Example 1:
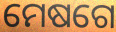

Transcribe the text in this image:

ମେଷଗେ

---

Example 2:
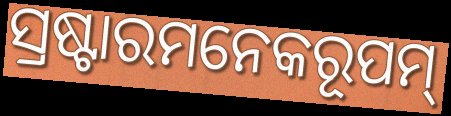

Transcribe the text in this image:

ସ୍ରଷ୍ଟାରମନେକରୂପମ୍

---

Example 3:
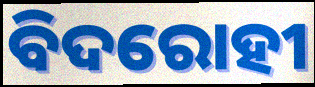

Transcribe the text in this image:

ବିଦରୋହୀ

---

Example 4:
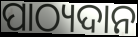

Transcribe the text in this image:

ପାଠ୍ୟଦାନ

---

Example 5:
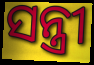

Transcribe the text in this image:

ସନ୍ତ୍ରୀ